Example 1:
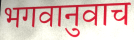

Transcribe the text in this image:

भगवानुवाच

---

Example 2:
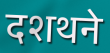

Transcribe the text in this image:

दशथने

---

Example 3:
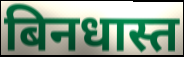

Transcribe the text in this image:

बिनधास्त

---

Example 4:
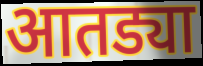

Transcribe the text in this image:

आतड्या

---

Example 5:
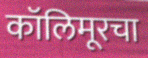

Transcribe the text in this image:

कॉलिमूरचा